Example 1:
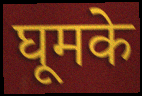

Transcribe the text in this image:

घूमके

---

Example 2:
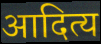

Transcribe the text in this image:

आदित्‍य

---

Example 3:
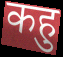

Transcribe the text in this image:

कहु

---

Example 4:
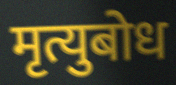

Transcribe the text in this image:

मृत्युबोध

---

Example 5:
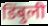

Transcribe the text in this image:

डिंबुली